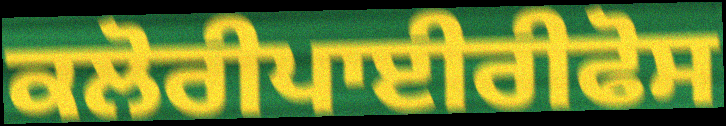
ਕਲੋਰੀਪਾਈਰੀਫੋਸ